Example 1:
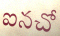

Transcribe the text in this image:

ఐనచో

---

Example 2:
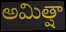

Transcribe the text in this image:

అమిత్షా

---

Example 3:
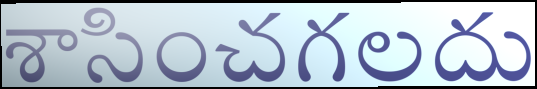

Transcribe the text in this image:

శాసించగలదు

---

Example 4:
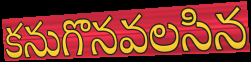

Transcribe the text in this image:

కనుగొనవలసిన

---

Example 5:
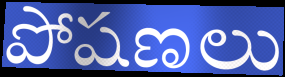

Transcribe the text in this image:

పోషణలు